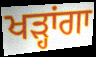
ਖੜ੍ਹਾਂਗਾ